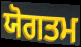
ਯੋਗਤਮ